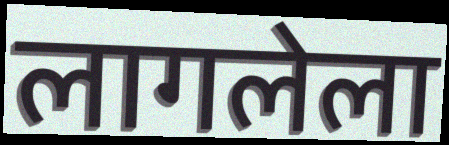
लागलेला